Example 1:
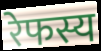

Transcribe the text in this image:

रेफस्य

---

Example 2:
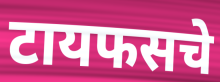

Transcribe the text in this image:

टायफसचे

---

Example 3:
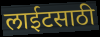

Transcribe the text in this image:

लाईटसाठी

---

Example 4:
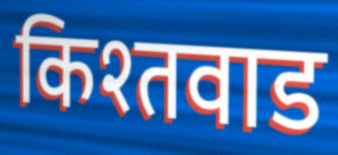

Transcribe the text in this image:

किश्तवाड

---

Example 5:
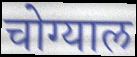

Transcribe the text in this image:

चोग्याल